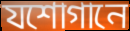
যশোগানে